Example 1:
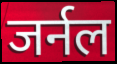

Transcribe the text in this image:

जर्नल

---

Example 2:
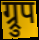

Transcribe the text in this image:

ग्र्रुप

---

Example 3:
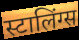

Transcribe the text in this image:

स्टालिंग्स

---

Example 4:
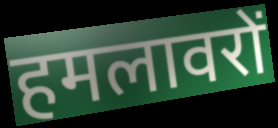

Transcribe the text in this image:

हमलावरों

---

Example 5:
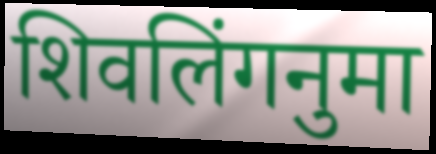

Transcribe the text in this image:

शिवलिंगनुमा